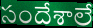
సందేశాలే